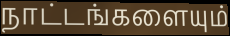
நாட்டங்களையும்